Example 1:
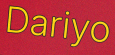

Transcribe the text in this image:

Dariyo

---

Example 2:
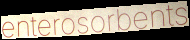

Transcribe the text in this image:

enterosorbents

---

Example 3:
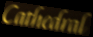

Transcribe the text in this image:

Cathedral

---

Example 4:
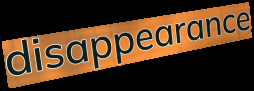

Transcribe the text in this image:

disappearance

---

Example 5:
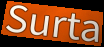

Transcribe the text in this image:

Surta